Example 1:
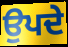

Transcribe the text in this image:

ਉਪਦੇ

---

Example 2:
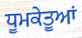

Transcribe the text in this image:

ਧੂਮਕੇਤੂਆਂ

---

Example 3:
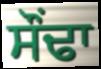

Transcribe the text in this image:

ਸੌਂਢਾ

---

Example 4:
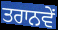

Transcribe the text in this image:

ਤਰਾਨਵੇਂ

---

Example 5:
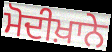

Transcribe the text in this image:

ਮੋਦੀਖ਼ਾਨੇ